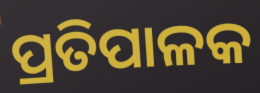
ପ୍ରତିପାଳକ